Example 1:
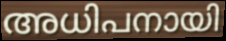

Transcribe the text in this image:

അധിപനായി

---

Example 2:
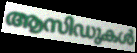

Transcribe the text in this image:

ആസിഡുകൾ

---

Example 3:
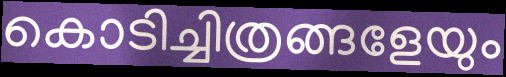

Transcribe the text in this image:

കൊടിച്ചിത്രങ്ങളേയും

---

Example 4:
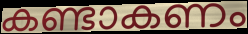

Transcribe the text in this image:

കണ്ടാകണം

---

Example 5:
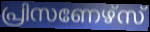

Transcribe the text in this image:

പ്രിസണേഴ്സ്